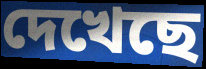
দেখেছে